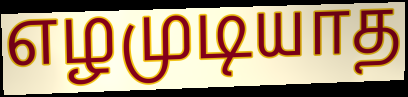
எழமுடியாத